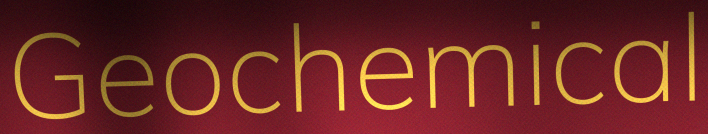
Geochemical